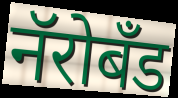
नॅरोबँड